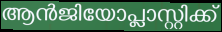
ആൻജിയോപ്ലാസ്റ്റിക്ക്